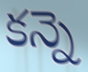
కన్నె